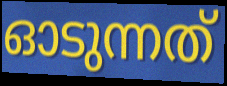
ഓടുന്നത്